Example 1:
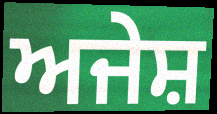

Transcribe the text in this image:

ਅਜੇਸ਼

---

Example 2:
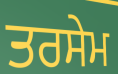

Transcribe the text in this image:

ਤਰਸੇਮ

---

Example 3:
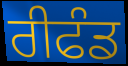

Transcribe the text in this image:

ਰੀਫੰਡ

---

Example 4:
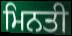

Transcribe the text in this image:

ਮਿਨਤੀ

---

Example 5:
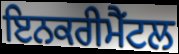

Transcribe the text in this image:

ਇਨਕਰੀਮੈਂਟਲ